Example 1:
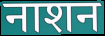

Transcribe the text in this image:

नाशन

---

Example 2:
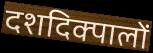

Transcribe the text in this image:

दशदिक्पालों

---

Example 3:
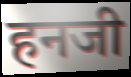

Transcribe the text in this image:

हनजी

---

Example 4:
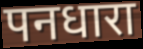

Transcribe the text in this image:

पनधारा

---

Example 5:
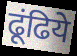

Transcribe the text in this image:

ढूंढिये